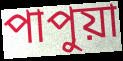
পাপুয়া